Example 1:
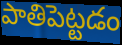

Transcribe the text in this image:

పాతిపెట్టడం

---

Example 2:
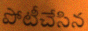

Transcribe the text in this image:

పోటీచేసిన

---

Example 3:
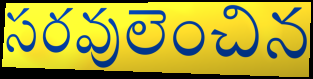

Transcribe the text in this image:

సరవులెంచిన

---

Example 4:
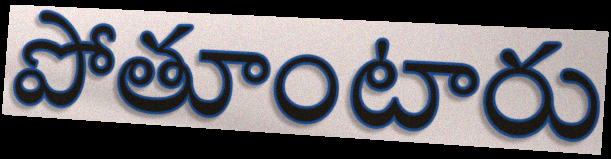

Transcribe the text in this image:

పోతూంటారు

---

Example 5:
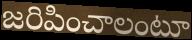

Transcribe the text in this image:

జరిపించాలంటూ